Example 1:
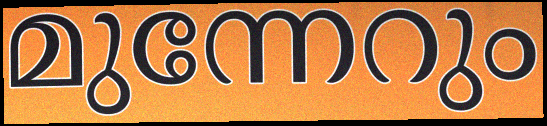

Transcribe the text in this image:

മുന്നേറും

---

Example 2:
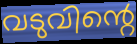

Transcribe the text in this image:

വടുവിന്റെ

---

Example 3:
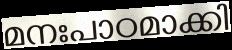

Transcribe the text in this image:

മനഃപാഠമാക്കി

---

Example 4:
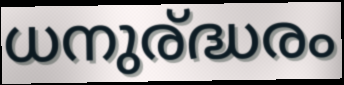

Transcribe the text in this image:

ധനുര്ദ്ധരം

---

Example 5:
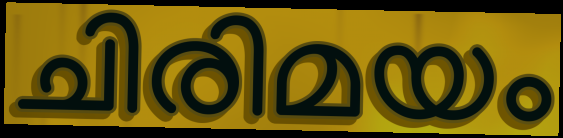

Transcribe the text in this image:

ചിരിമയം